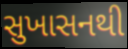
સુખાસનથી